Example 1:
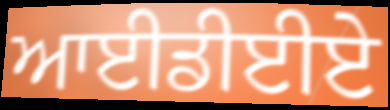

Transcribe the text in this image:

ਆਈਡੀਈਏ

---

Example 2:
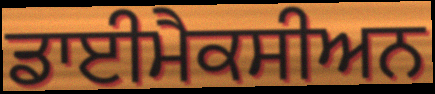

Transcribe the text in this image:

ਡਾਈਮੈਕਸੀਅਨ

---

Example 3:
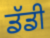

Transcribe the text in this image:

ਡੱਡੀ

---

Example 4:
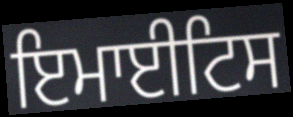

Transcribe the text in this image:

ਇਮਾਈਟਿਸ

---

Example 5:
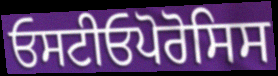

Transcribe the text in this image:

ਓਸਟੀਓਪੋਰੋਸਿਸ